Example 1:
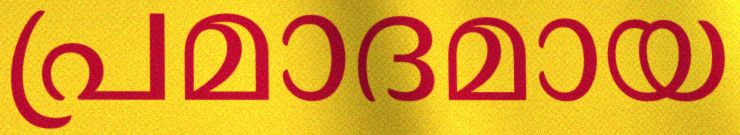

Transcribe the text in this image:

പ്രമാദമായ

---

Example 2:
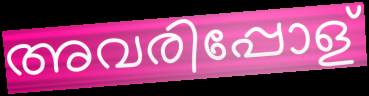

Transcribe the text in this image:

അവരിപ്പോള്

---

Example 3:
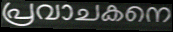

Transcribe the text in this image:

പ്രവാചകനെ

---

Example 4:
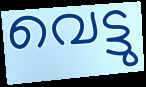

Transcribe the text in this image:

വെട്ടു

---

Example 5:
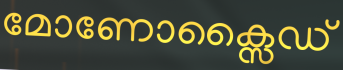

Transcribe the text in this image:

മോണോക്സൈഡ്